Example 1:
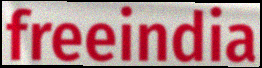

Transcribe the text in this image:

freeindia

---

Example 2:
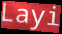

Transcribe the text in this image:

Layi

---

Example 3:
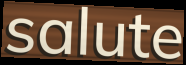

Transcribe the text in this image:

salute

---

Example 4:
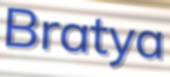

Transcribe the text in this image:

Bratya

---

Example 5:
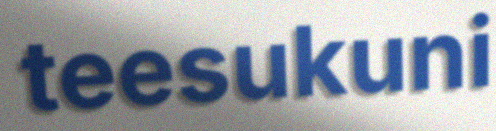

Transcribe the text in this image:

teesukuni